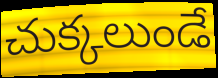
చుక్కలుండే